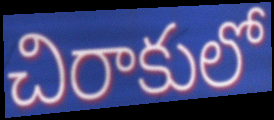
చిరాకులో